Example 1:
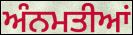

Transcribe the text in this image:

ਅੰਨਮਤੀਆਂ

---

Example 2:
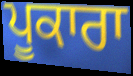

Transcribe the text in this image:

ਪੂਕਾਰਾ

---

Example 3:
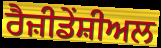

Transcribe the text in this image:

ਰੈਜ਼ੀਡੇਂਸ਼ੀਅਲ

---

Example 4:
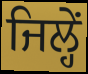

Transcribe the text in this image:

ਜਿਲ੍ਹੇਂ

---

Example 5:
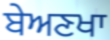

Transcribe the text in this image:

ਬੇਅਣਖਾ